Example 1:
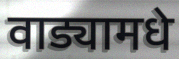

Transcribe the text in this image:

वाड्यामधे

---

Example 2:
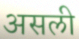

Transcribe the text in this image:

असली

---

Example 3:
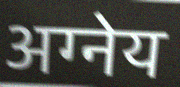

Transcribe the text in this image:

अग्नेय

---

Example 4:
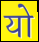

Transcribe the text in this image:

यो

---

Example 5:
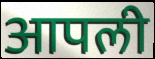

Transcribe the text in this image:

आपली